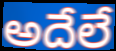
అదేలే